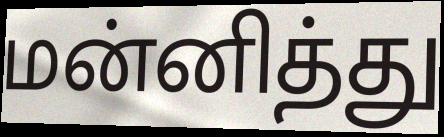
மன்னித்து